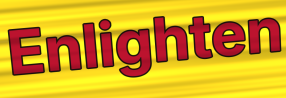
Enlighten